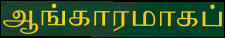
ஆங்காரமாகப்